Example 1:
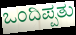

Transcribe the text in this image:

ಒಂದಿಪ್ಪತು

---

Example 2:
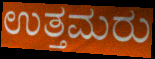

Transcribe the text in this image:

ಉತ್ತಮರು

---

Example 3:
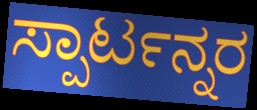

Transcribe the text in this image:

ಸ್ಪಾರ್ಟನ್ನರ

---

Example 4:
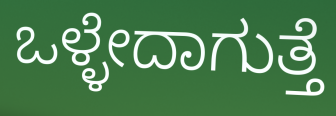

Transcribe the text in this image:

ಒಳ್ಳೇದಾಗುತ್ತೆ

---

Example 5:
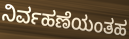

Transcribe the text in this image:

ನಿರ್ವಹಣೆಯಂತಹ